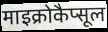
माइक्रोकैप्सूल